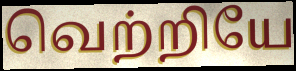
வெற்றியே